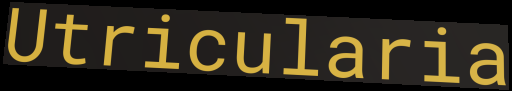
Utricularia